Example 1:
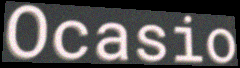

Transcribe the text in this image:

Ocasio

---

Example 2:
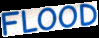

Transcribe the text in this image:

FLOOD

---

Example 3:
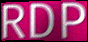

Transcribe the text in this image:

RDP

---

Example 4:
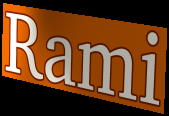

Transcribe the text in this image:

Rami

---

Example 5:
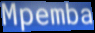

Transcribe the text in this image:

Mpemba